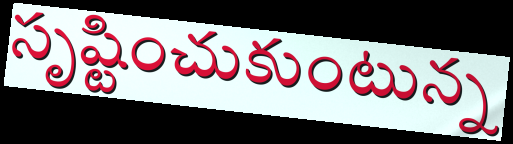
సృష్టించుకుంటున్న